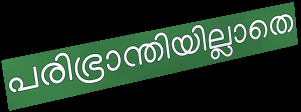
പരിഭ്രാന്തിയില്ലാതെ